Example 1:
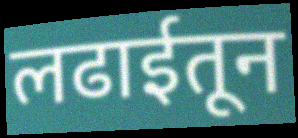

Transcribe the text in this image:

लढाईतून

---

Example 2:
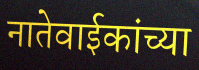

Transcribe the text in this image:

नातेवाईकांच्या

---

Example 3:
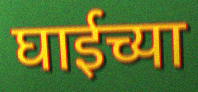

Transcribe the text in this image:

घाईच्या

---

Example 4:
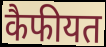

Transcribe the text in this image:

कैफीयत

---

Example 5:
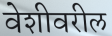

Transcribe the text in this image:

वेशीवरील